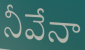
నీవేనా